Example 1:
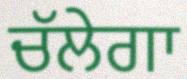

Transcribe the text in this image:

ਚੱਲੇਗਾ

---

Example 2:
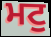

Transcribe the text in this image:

ਮਟੁ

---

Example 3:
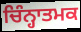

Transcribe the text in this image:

ਚਿੰਨ੍ਹਾਤਮਕ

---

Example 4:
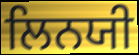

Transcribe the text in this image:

ਲਿਨਯੀ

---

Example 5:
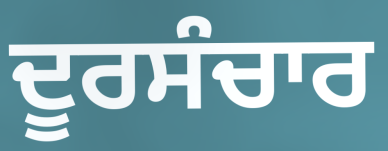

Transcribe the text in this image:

ਦੂਰਸੰਚਾਰ